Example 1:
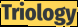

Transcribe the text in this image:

Triology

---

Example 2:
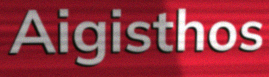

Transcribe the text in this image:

Aigisthos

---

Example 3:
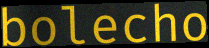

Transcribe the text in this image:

bolecho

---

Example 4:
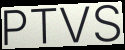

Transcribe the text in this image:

PTVS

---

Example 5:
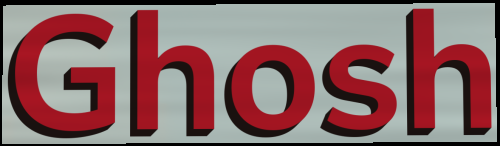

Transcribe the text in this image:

Ghosh